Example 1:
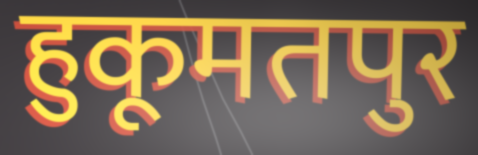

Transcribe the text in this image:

हुकूमतपुर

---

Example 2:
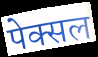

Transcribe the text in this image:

पेक्सल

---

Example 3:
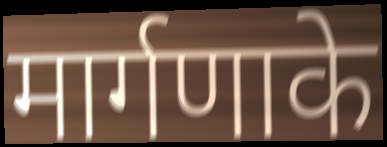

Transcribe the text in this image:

मार्गणाके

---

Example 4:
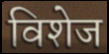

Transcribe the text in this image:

विशेज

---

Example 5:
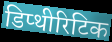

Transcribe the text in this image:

डिप्थीरिटिक